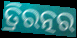
ତ୍ରିରତ୍ନର